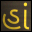
હાં